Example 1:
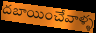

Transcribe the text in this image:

దబాయించేవాళ్ళ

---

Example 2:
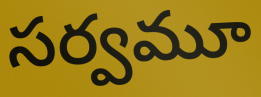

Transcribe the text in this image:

సర్వమూ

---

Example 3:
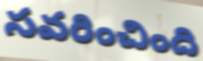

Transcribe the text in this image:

సవరించింది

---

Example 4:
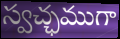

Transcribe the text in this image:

స్వచ్ఛముగా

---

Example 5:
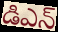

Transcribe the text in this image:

డిఎన్